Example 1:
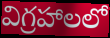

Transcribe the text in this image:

విగ్రహాలలో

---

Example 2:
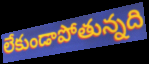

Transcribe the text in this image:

లేకుండాపోతున్నది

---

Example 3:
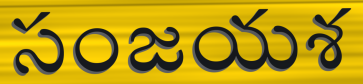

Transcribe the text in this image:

సంజయశ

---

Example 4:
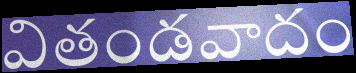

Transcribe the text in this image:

వితండవాదం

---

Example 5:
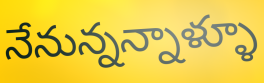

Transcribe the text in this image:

నేనున్నన్నాళ్ళూ